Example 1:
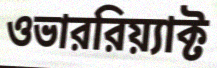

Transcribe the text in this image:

ওভাররিয়্যাক্ট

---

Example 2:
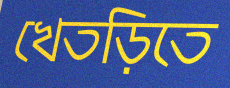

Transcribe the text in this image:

খেতড়িতে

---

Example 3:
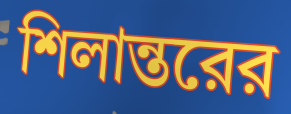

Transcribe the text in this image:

শিলান্তরের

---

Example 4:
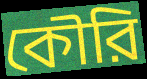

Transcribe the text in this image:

কৌরি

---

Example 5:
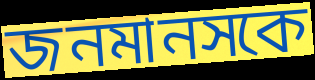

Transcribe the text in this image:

জনমানসকে